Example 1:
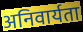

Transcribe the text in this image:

अनिवार्यता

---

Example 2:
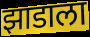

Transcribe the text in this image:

झाडाला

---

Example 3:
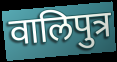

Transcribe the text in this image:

वालिपुत्र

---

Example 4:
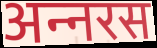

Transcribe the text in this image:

अन्नरस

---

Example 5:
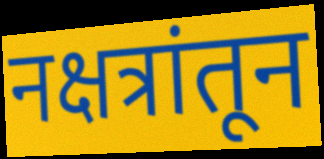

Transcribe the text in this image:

नक्षत्रांतून